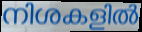
നിശകളിൽ